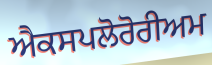
ਐਕਸਪਲੋਰੋਰੀਅਮ